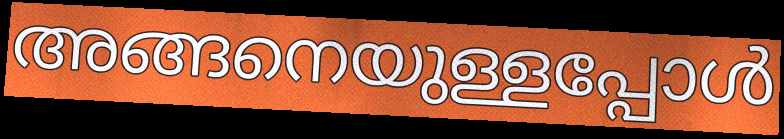
അങ്ങനെയുള്ളപ്പോൾ